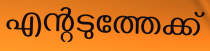
എന്റടുത്തേക്ക്